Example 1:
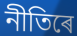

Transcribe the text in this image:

নীতিৰে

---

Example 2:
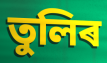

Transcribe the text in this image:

তুলিৰ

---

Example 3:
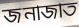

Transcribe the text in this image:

জনাজাত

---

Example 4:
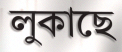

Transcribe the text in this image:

লুকাছে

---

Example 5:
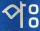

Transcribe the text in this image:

পঃ